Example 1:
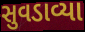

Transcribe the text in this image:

સુવડાવ્યા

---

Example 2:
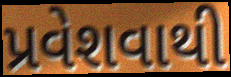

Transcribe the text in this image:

પ્રવેશવાથી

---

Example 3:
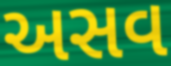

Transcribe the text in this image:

અસવ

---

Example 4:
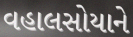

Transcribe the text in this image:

વહાલસોયાને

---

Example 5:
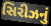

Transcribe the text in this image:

સિરીઝનું